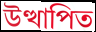
উত্থাপিত